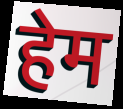
हेम